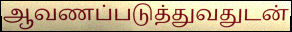
ஆவணப்படுத்துவதுடன்